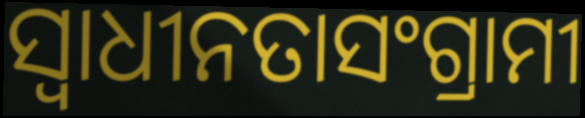
ସ୍ଵାଧୀନତାସଂଗ୍ରାମୀ